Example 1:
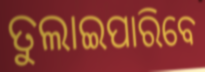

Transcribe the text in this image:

ତୁଲାଇପାରିବେ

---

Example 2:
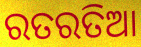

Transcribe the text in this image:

ରତରତିଆ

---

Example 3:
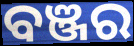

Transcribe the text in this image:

ବଞ୍ଜର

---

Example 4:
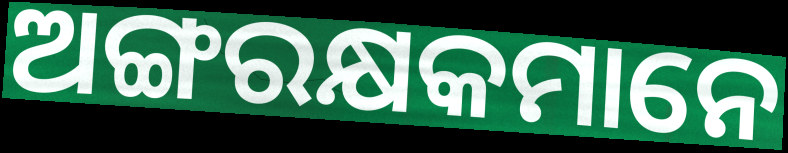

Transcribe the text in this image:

ଅଙ୍ଗରକ୍ଷକମାନେ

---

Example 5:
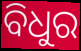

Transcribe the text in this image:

ବିଧୁର